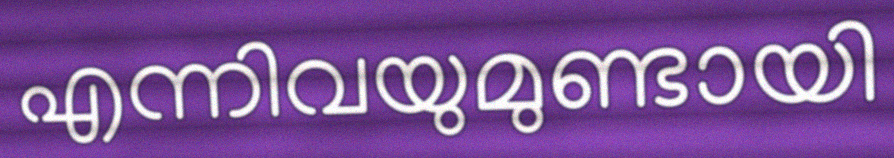
എന്നിവയുമുണ്ടായി